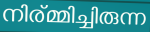
നിര്മ്മിച്ചിരുന്ന